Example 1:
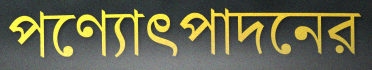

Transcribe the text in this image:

পণ্যোৎপাদনের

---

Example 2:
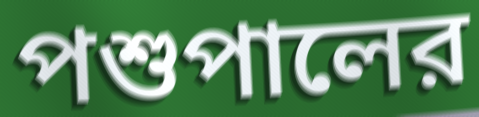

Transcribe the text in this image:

পশুপালের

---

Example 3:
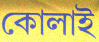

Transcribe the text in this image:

কোলাই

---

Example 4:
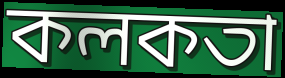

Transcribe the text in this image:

কলকতা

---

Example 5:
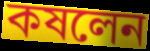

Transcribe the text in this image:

কষলেন